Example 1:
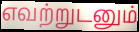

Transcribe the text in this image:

எவற்றுடனும்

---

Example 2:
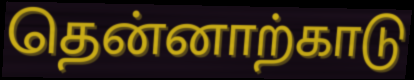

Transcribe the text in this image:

தென்னாற்காடு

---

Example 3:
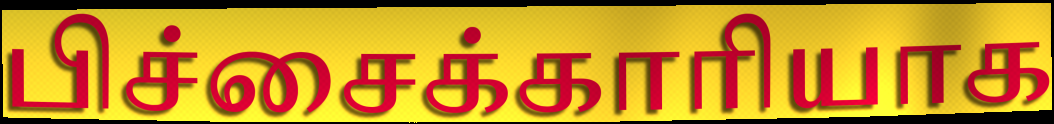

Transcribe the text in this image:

பிச்சைக்காரியாக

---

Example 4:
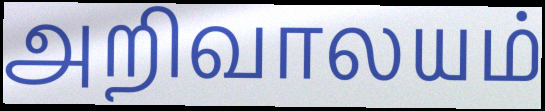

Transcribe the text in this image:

அறிவாலயம்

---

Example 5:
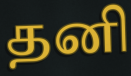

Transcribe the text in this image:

தனி